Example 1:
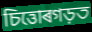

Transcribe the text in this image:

চিত্তোৰগড়ত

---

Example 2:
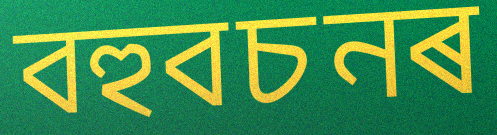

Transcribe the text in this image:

বহুবচনৰ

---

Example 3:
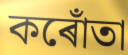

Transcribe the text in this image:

কৰোঁতা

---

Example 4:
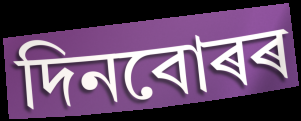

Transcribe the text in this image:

দিনবোৰৰ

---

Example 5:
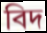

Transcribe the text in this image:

বিদ